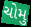
ચોમુ